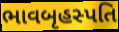
ભાવબૃહસ્પતિ